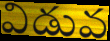
విడువ